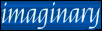
imaginary